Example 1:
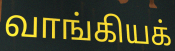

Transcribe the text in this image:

வாங்கியக்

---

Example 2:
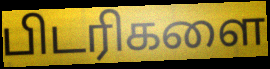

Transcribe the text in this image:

பிடரிகளை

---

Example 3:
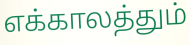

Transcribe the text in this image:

எக்காலத்தும்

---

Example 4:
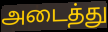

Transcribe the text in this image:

அடைத்து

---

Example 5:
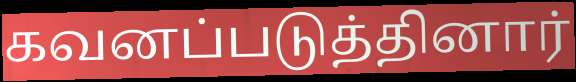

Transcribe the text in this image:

கவனப்படுத்தினார்